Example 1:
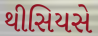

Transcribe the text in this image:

થીસિયસે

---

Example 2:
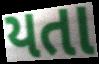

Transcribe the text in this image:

યતા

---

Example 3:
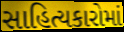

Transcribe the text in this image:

સાહિત્યકારોમાં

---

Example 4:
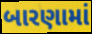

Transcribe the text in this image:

બારણામાં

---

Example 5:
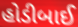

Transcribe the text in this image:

હોડીબાઈ